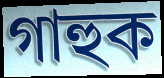
গাহুক